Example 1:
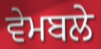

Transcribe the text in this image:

ਵੇਮਬਲੇ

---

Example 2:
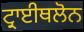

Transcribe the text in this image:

ਟ੍ਰਾਈਥਲੋਨ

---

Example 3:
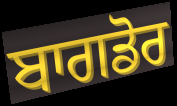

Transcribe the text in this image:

ਬਾਗਡੋਰ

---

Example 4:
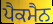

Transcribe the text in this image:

ਪੈਕਮੈਨ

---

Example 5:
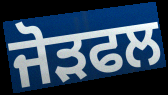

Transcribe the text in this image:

ਜੋੜਫਲ